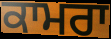
ਕਾਮਰਾ